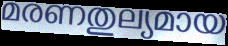
മരണതുല്യമായ